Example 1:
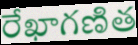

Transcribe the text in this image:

రేఖాగణిత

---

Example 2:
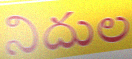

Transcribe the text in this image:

నిదుల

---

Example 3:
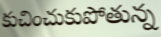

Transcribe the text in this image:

కుచించుకుపోతున్న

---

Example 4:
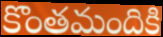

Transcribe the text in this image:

కొంతమందికి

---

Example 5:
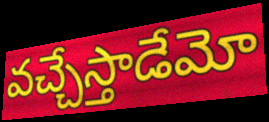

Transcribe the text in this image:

వచ్చేస్తాడేమో